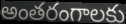
అంతరంగాలకు